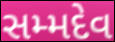
સમ્મદેવ